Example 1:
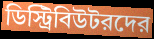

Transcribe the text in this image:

ডিস্ট্রিবিউটরদের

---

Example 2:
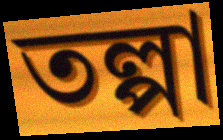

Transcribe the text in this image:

তল্পা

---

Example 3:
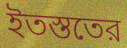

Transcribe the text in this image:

ইতস্ততের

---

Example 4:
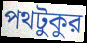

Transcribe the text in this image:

পথটুকুর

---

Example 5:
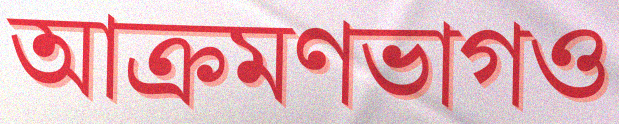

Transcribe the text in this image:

আক্রমণভাগও